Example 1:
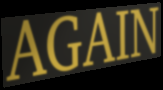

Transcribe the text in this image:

AGAIN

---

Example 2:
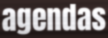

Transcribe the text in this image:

agendas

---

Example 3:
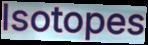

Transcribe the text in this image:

Isotopes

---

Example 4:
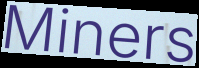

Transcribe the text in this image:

Miners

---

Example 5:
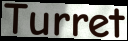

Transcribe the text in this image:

Turret